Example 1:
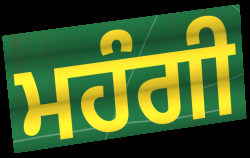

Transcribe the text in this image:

ਮਹੰਗੀ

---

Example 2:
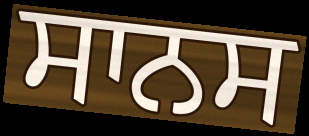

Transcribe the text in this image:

ਸਾਨਸ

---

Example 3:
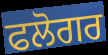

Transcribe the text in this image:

ਫਲੋਗਰ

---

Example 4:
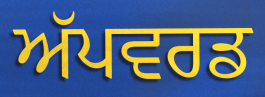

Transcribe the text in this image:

ਅੱਪਵਰਡ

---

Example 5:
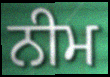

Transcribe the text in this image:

ਨੀਮ